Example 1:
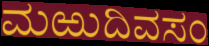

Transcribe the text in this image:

ಮಱುದಿವಸಂ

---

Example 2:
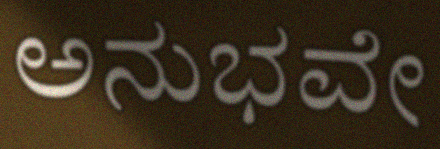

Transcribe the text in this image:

ಅನುಭವೇ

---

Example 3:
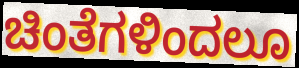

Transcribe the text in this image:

ಚಿಂತೆಗಳಿಂದಲೂ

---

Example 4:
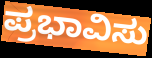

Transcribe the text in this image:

ಪ್ರಭಾವಿಸು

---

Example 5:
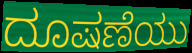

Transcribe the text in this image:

ದೂಷಣೆಯು